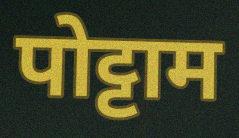
पोट्टाम